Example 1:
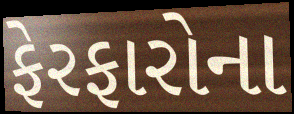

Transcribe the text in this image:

ફેરફારોના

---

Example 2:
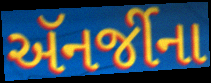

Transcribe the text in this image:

ઍનર્જીના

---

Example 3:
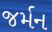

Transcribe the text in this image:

જર્મન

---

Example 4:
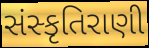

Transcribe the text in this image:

સંસ્કૃતિરાણી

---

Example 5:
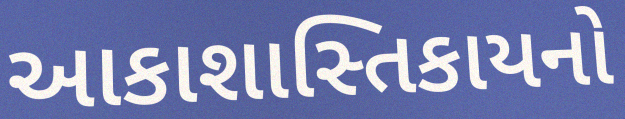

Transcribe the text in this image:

આકાશાસ્તિકાયનો